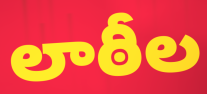
లాఠీల